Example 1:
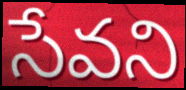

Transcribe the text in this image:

సేవని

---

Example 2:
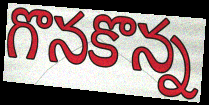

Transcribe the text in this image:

గొనకొన్న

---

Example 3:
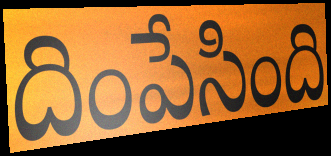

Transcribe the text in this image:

దింపేసింది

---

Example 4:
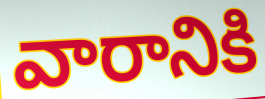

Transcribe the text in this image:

వారానికి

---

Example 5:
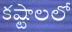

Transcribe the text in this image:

కష్టాలలో